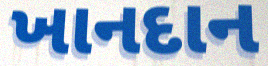
ખાનદાન